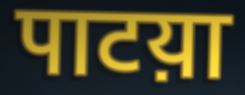
पाटय़ा